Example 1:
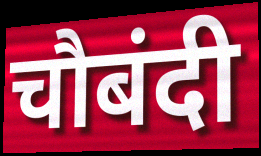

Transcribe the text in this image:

चौबंदी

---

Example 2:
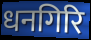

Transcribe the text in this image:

धनगिरि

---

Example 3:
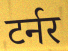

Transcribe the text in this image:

टर्नर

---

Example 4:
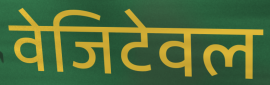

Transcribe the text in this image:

वेजिटेवल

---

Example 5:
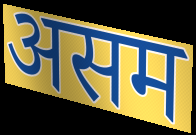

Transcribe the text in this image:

असम